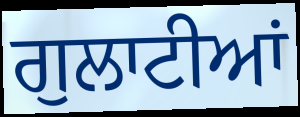
ਗੁਲਾਟੀਆਂ